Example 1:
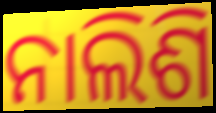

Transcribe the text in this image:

ନାଲିଶି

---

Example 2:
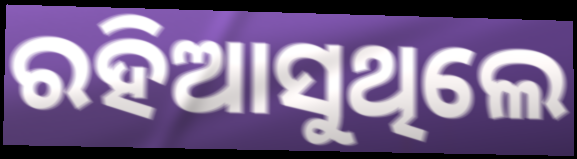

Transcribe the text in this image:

ରହିଆସୁଥିଲେ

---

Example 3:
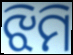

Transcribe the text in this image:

ଝିମି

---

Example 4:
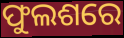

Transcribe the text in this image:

ଫୁଲଶରେ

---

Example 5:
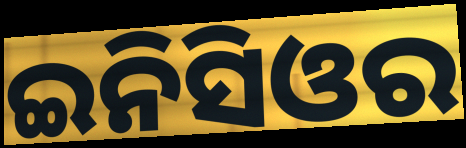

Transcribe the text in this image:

ଇନିସିଓର